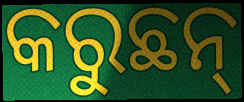
କରୁଛନ୍